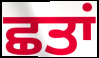
ਛਤਾਂ